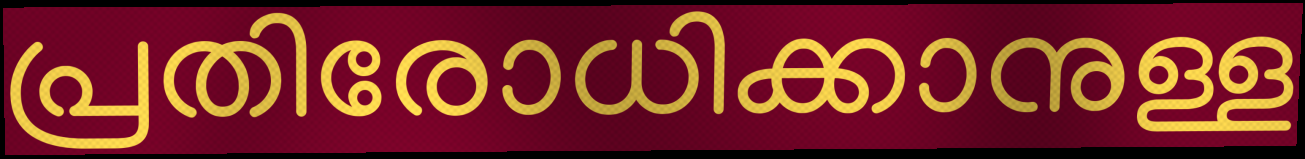
പ്രതിരോധിക്കാനുള്ള